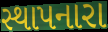
સ્થાપનારા